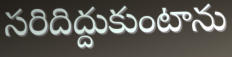
సరిదిద్దుకుంటాను